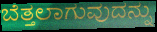
ಬೆತ್ತಲಾಗುವುದನ್ನು